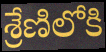
శ్రేణిలోకి